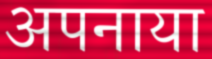
अपनाया